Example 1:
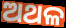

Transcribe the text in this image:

ଅଥଳ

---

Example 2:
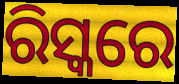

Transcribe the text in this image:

ରିସ୍କରେ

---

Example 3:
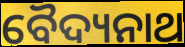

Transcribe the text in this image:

ବୈଦ୍ୟନାଥ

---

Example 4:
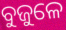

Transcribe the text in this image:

ବୁଜୁଳେ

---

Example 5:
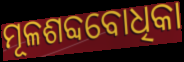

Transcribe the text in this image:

ମୂଳଶବ୍ଦବୋଧିକା